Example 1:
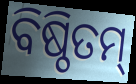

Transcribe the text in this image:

ବିଷ୍ଠିତମ୍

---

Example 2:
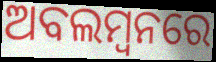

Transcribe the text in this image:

ଅବଲମ୍ବନରେ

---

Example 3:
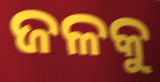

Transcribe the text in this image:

ଜଳକୁ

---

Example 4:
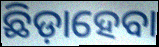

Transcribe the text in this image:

ଛିଡ଼ାହେବା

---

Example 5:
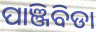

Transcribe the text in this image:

ପାଞ୍ଜିବିଡା